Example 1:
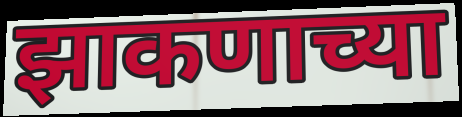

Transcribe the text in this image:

झाकणाच्या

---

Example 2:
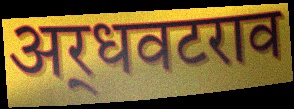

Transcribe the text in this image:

अर्धवटराव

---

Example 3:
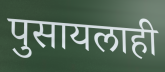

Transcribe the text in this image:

पुसायलाही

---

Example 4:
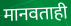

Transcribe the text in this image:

मानवताही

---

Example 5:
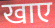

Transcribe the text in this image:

खाए